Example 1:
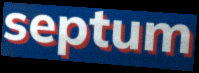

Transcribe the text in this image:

septum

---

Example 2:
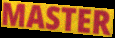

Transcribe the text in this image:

MASTER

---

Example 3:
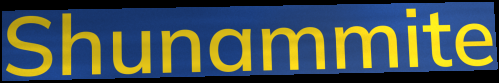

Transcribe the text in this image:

Shunammite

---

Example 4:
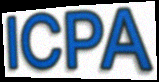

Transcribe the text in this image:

ICPA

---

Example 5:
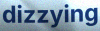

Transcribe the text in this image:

dizzying